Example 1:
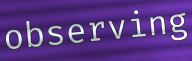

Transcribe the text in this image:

observing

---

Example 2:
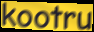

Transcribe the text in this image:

kootru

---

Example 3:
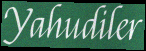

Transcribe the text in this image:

Yahudiler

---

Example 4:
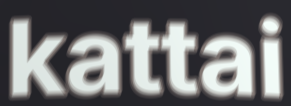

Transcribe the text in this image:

kattai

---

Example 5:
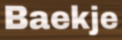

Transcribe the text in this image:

Baekje